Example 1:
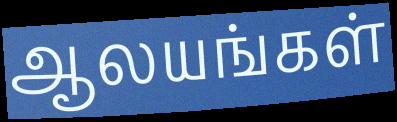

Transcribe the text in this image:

ஆலயங்கள்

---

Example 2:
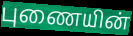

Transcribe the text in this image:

புணையின்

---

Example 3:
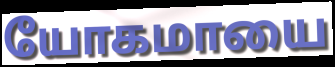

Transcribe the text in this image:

யோகமாயை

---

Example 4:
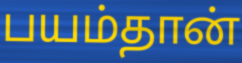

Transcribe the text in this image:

பயம்தான்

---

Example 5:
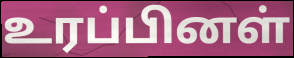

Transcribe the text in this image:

உரப்பினள்